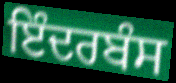
ਇੰਦਰਬੰਸ